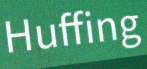
Huffing